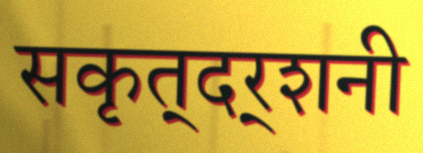
सकृत्‌दर्शनी